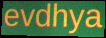
evdhya